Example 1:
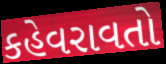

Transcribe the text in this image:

કહેવરાવતો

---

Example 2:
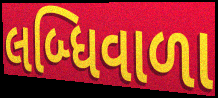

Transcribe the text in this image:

લબ્ધિવાળા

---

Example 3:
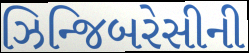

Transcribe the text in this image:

ઝિન્જિબરેસીની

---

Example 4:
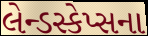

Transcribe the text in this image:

લેન્ડસ્કેપ્સના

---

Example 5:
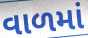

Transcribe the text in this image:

વાળમાં